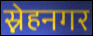
स्नेहनगर